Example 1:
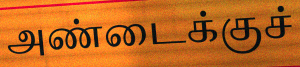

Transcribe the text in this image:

அண்டைக்குச்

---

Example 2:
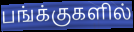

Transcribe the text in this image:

பங்க்குகளில்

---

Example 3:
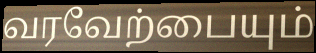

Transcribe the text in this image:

வரவேற்பையும்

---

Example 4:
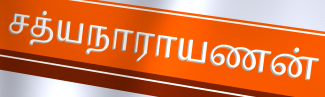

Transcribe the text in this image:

சத்யநாராயணன்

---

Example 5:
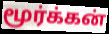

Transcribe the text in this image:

மூர்க்கன்